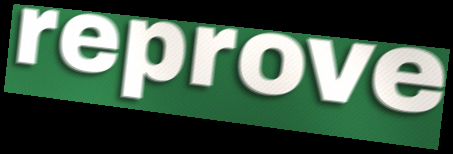
reprove